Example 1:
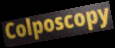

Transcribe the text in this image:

Colposcopy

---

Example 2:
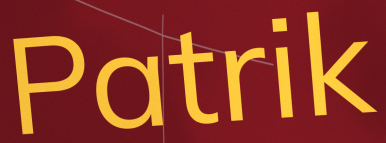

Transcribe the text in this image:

Patrik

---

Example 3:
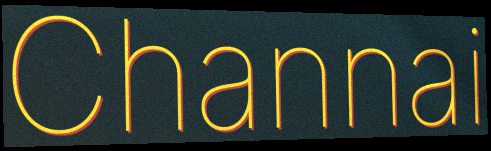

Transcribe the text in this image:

Channai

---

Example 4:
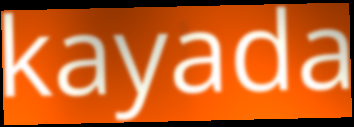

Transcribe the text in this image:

kayada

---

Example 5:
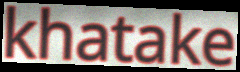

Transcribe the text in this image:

khatake